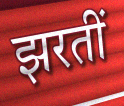
झरतीं